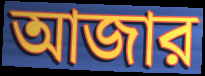
আজার